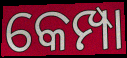
କେମ୍ପା